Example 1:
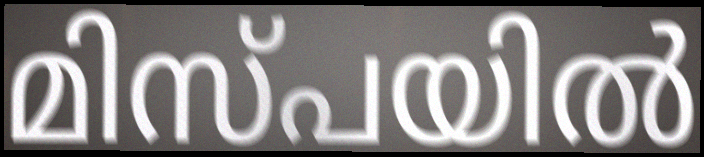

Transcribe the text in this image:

മിസ്പയിൽ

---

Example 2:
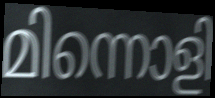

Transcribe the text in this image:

മിന്നൊളി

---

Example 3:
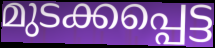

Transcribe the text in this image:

മുടക്കപ്പെട്ട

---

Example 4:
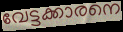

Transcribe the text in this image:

വേട്ടക്കാരനെ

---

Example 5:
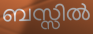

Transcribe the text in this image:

ബസ്സിൽ